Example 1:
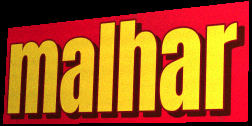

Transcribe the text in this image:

malhar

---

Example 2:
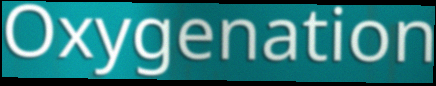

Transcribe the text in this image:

Oxygenation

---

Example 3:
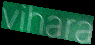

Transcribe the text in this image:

vihara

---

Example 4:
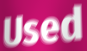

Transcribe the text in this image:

Used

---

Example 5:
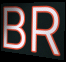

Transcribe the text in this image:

BR